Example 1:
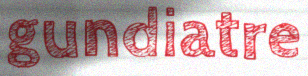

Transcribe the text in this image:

gundiatre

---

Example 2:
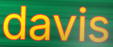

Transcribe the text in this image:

davis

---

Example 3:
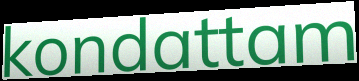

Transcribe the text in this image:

kondattam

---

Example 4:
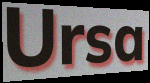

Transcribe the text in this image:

Ursa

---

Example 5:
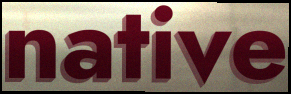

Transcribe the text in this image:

native